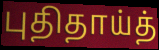
புதிதாய்த்